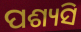
ପଶ୍ୟସି